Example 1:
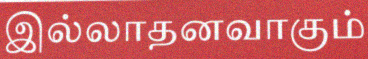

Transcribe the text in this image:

இல்லாதனவாகும்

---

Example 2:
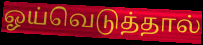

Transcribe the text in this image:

ஓய்வெடுத்தால்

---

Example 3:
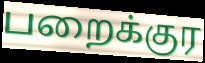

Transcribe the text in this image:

பறைக்குர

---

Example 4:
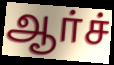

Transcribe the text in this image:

ஆர்ச்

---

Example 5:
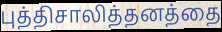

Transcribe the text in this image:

புத்திசாலித்தனத்தை